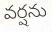
వర్షను